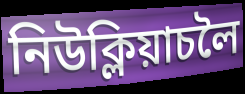
নিউক্লিয়াচলৈ